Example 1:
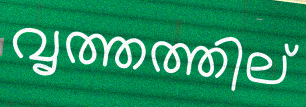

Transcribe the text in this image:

വൃത്തത്തില്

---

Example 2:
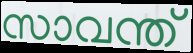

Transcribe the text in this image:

സാവന്ത്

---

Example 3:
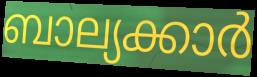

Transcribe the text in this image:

ബാല്യക്കാർ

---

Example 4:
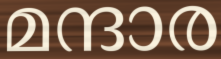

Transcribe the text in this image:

മന്ദാര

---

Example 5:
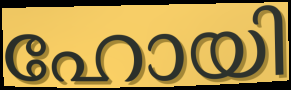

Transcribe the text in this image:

ഹോയി